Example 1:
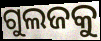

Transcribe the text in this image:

ଗୁଲଜକୁ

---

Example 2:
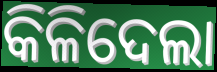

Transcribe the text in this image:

କିଳିଦେଲା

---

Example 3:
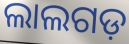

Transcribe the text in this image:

ଲାଲଗଡ଼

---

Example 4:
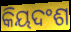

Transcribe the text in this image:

କିୟଦଂଶ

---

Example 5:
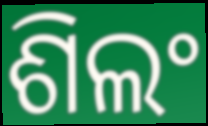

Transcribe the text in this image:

ଶିଲଂ